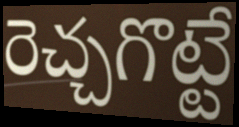
రెచ్చగొట్టే